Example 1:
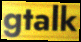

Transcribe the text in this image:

gtalk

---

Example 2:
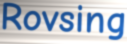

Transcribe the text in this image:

Rovsing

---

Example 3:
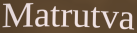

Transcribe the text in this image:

Matrutva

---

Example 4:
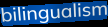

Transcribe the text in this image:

bilingualism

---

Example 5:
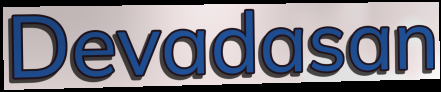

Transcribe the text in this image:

Devadasan